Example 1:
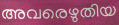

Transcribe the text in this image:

അവരെഴുതിയ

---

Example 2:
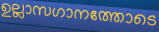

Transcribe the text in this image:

ഉല്ലാസഗാനത്തോടെ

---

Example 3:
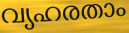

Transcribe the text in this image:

വ്യഹരതാം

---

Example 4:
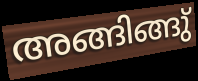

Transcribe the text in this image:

അങ്ങിങ്ങു്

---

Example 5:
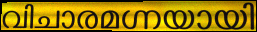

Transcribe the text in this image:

വിചാരമഗ്നയായി